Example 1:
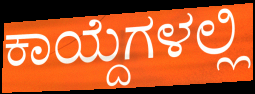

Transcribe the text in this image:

ಕಾಯ್ದೆಗಳಲ್ಲಿ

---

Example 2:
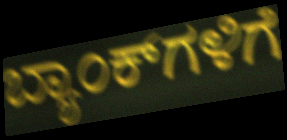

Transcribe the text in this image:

ಬ್ಯಾಂಕ್‌ಗಳಿಗೆ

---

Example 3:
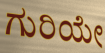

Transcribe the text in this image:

ಗುರಿಯೇ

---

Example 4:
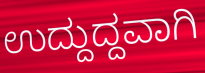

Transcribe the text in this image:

ಉದ್ದುದ್ದವಾಗಿ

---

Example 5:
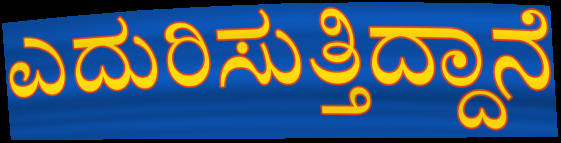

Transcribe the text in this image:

ಎದುರಿಸುತ್ತಿದ್ದಾನೆ